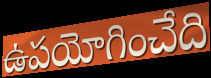
ఉపయోగించేది